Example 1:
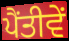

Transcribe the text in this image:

ਪੈਂਤੀਵੇਂ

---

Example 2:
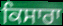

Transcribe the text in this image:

ਕਿਸਾਰਾ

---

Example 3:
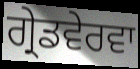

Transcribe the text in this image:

ਗ੍ਰੇਡਵੇਰਵਾ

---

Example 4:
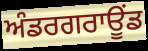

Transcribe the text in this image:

ਅੰਡਰਗਰਾਊੰਡ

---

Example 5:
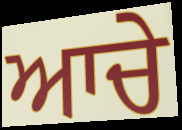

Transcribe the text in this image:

ਆਚੇ